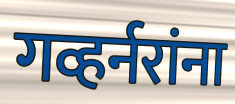
गव्हर्नरांना